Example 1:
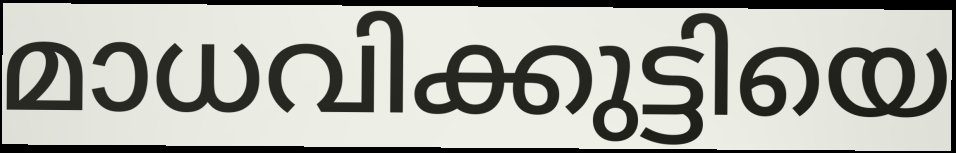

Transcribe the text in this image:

മാധവിക്കുട്ടിയെ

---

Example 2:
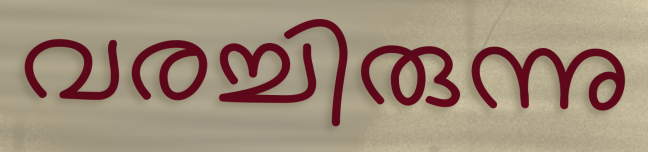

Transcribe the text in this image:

വരച്ചിരുന്നു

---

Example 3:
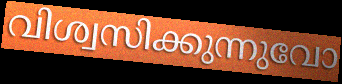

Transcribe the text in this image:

വിശ്വസിക്കുന്നുവോ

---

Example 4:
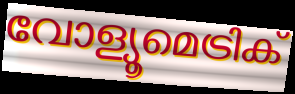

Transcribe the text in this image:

വോള്യൂമെട്രിക്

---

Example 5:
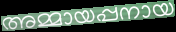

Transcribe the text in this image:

അമ്മായപ്പനായ